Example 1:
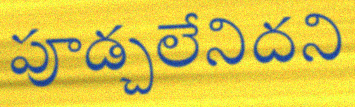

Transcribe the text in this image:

పూడ్చలేనిదని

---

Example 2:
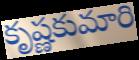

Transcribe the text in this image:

కృష్ణకుమారి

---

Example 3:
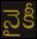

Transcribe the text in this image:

నైకీ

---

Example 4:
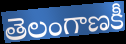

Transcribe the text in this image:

తెలంగాణకీ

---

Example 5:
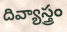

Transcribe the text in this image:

దివ్యాస్త్రం